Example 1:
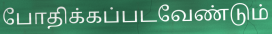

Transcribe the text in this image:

போதிக்கப்படவேண்டும்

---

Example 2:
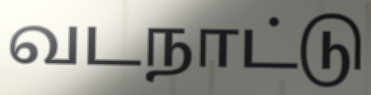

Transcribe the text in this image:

வடநாட்டு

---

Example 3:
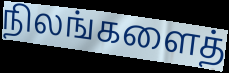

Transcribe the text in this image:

நிலங்களைத்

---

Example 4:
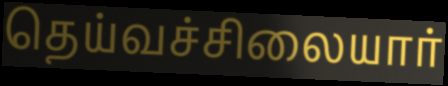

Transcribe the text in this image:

தெய்வச்சிலையார்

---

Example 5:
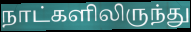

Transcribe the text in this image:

நாட்களிலிருந்து